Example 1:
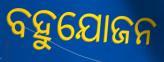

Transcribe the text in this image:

ବହୁଯୋଜନ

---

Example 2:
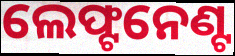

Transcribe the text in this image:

ଲେଫ୍ଟନେଣ୍ଟ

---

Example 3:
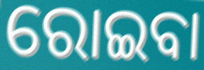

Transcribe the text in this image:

ରୋଇବା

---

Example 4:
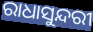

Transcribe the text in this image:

ରାଧାସୁନ୍ଦରୀ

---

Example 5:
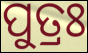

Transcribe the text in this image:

ପୁତ୍ରଃ